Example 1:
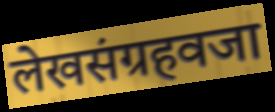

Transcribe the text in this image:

लेखसंग्रहवजा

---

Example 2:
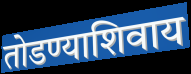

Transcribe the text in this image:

तोडण्याशिवाय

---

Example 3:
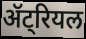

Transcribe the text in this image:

ॲट्रियल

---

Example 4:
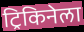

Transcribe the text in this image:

ट्रिकिनेला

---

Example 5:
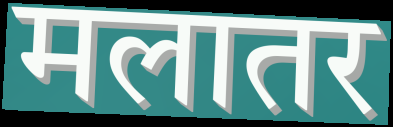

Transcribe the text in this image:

मलातर